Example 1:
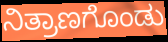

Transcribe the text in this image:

ನಿತ್ರಾಣಗೊಂಡು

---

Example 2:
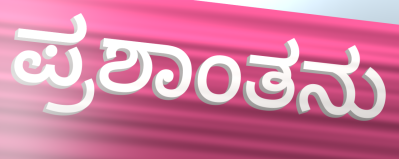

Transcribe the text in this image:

ಪ್ರಶಾಂತನು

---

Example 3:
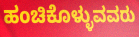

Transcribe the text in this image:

ಹಂಚಿಕೊಳ್ಳುವವರು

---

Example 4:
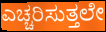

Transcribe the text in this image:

ಎಚ್ಚರಿಸುತ್ತಲೇ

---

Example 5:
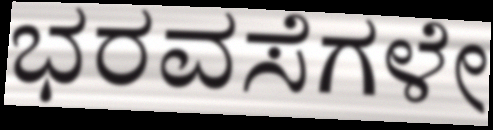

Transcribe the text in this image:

ಭರವಸೆಗಳೇ